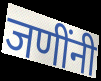
जणींनी